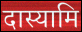
दास्यामि